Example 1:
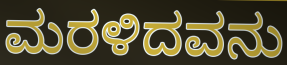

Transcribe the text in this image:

ಮರಳಿದವನು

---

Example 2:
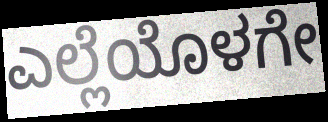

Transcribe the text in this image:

ಎಲ್ಲೆಯೊಳಗೇ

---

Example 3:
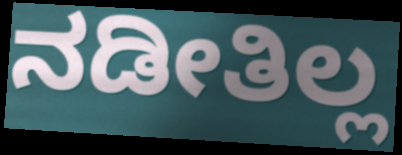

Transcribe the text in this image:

ನಡೀತಿಲ್ಲ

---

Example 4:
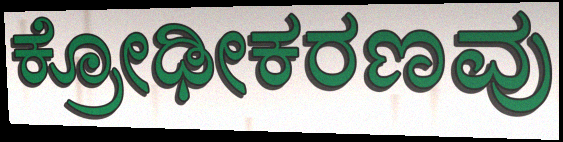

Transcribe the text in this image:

ಕ್ರೋಢೀಕರಣವು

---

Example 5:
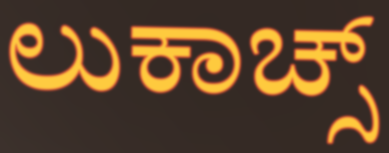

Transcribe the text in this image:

ಲುಕಾಚ್ಸ್